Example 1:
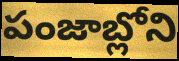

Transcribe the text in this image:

పంజాబ్లోని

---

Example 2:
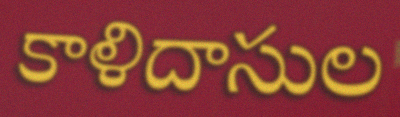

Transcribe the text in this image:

కాళిదాసుల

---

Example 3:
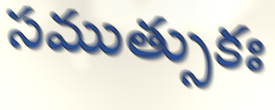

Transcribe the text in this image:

సముత్సుకః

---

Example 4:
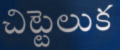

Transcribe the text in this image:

చిట్టెలుక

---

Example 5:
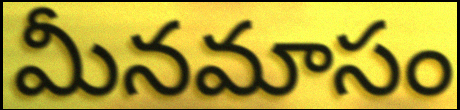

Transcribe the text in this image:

మీనమాసం